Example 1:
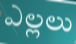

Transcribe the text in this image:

ఎల్లలు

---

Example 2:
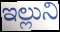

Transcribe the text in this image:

ఇల్లుని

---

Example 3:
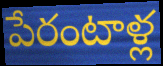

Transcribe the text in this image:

పేరంటాళ్ల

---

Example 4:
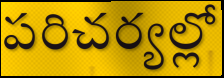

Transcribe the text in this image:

పరిచర్యల్లో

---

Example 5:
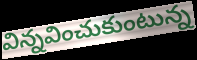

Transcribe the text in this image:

విన్నవించుకుంటున్న